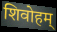
शिवोहम्